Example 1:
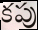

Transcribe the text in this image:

కపు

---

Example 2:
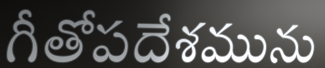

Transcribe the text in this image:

గీతోపదేశమును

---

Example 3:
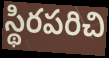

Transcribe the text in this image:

స్థిరపరిచి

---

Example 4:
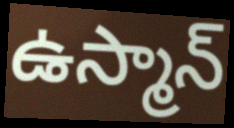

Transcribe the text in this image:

ఉస్మాన్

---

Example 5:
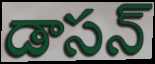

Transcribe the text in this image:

డాసన్